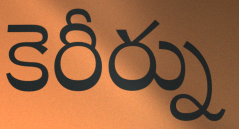
కెరీర్ను